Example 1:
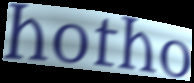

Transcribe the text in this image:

hotho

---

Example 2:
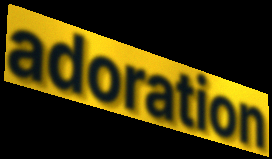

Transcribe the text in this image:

adoration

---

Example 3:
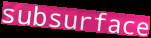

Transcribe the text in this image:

subsurface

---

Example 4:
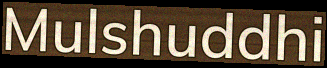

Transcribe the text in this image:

Mulshuddhi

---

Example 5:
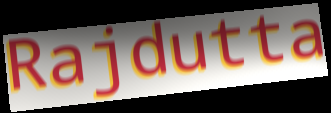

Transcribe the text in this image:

Rajdutta